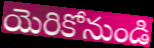
యెరికోనుండి